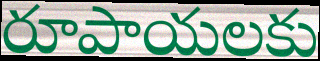
రూపాయలకు